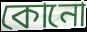
কোনো